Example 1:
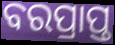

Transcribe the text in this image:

ବରପ୍ରାପ୍ତ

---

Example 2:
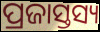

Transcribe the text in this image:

ପ୍ରଜାସ୍ତସ୍ୟ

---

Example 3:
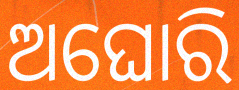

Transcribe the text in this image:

ଅଘୋରି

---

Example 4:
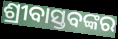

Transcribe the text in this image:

ଶ୍ରୀବାସ୍ତବଙ୍କର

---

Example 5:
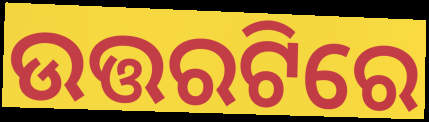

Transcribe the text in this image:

ଉତ୍ତରଟିରେ